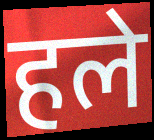
हले